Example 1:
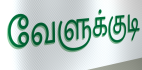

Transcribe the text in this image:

வேளுக்குடி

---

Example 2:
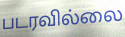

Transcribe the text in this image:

படரவில்லை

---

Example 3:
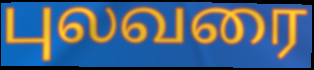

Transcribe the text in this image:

புலவரை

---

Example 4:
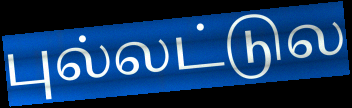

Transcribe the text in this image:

புல்லட்டுல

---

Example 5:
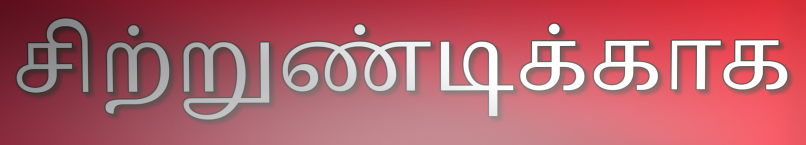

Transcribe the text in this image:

சிற்றுண்டிக்காக